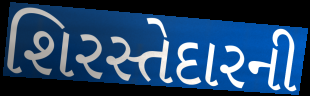
શિરસ્તેદારની